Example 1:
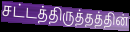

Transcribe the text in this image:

சட்டத்திருத்தத்தின்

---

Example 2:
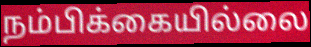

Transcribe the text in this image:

நம்பிக்கையில்லை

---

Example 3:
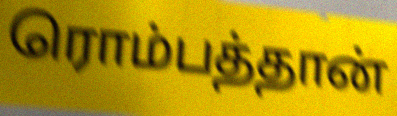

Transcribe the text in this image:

ரொம்பத்தான்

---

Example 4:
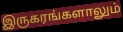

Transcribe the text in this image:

இருகரங்களாலும்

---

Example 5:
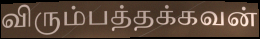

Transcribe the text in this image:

விரும்பத்தக்கவன்